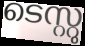
ടെസ്റ്റു